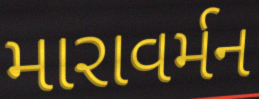
મારાવર્મન